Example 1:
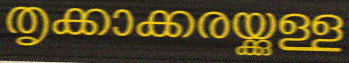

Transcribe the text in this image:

തൃക്കാക്കരയ്ക്കുള്ള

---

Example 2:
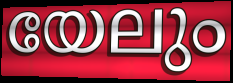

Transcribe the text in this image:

യേലും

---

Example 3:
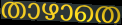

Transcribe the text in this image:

താഴാതെ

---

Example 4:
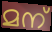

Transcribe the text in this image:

മന്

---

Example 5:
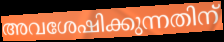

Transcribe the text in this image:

അവശേഷിക്കുന്നതിന്